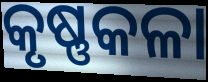
କୃଷ୍ଣକଳା